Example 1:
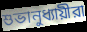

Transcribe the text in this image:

শুভানুধ্যায়ীরা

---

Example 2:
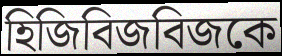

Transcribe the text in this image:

হিজিবিজবিজকে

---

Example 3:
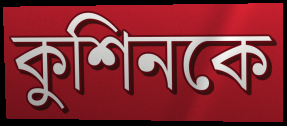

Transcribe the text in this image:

কুশিনকে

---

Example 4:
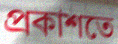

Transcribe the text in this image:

প্রকাশতে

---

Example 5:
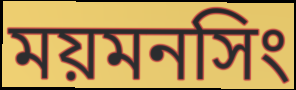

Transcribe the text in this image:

ময়মনসিং